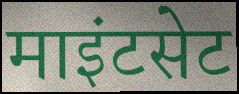
माइंटसेट